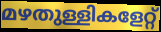
മഴതുള്ളികളേറ്റ്